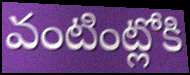
వంటింట్లోకి